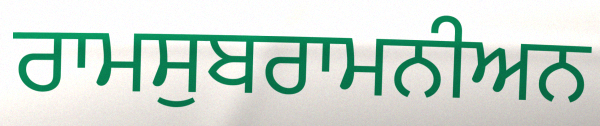
ਰਾਮਸੁਬਰਾਮਨੀਅਨ